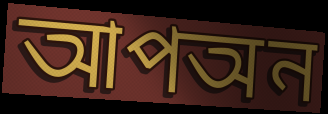
আপঅন